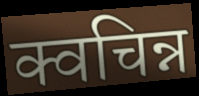
क्वचिन्न